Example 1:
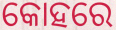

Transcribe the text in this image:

କୋହରେ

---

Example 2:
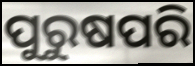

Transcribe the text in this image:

ପୁରୁଷପରି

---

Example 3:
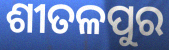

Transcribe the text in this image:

ଶୀତଳପୁର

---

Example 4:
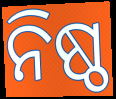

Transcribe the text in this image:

ନିଷ୍ଠ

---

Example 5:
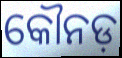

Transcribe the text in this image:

କୌନଡ଼